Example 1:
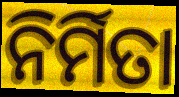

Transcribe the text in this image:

ନିର୍ମିତା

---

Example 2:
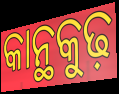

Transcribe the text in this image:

କାନ୍ଥକୁଢ଼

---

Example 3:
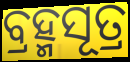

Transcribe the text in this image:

ବ୍ରହ୍ମସୂତ୍ର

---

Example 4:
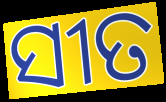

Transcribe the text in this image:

ସୀତ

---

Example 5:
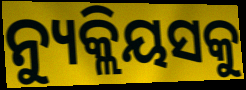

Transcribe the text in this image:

ନ୍ୟୁକ୍ଲିୟସକୁ